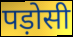
पड़ोसी